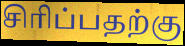
சிரிப்பதற்கு